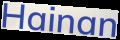
Hainan